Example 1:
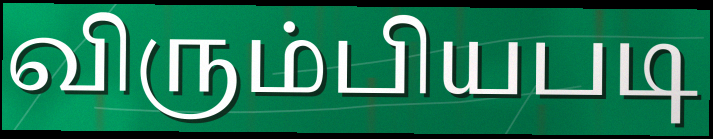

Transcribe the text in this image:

விரும்பியபடி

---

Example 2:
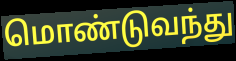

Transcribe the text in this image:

மொண்டுவந்து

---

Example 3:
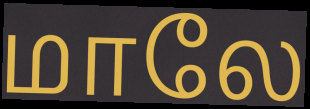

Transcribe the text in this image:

மாலே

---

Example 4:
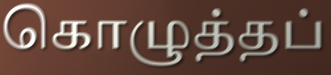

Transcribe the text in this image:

கொழுத்தப்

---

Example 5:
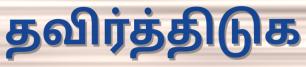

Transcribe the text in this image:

தவிர்த்திடுக